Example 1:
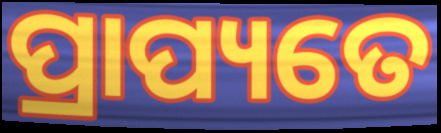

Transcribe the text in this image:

ପ୍ରାପ୍ୟତେ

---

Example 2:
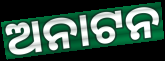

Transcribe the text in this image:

ଅନାଟନ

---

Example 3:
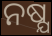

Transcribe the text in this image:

ନଷ୍ଯ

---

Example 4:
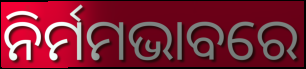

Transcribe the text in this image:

ନିର୍ମମଭାବରେ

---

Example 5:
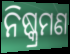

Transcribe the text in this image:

ନିଷ୍କ୍ରମଣ